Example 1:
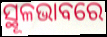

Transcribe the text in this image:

ସ୍ଥୂଳଭାବରେ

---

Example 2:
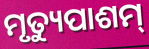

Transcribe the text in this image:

ମୃତ୍ୟୁପାଶମ୍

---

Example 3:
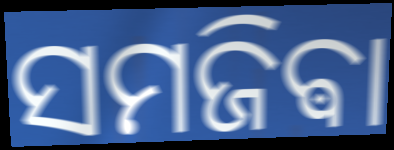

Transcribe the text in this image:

ସମଜିଵା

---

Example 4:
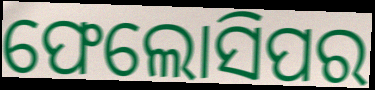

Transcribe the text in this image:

ଫେଲୋସିପର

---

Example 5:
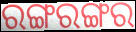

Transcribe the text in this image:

ରଙ୍ଗରଙ୍ଗର